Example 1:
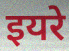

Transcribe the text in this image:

इयरे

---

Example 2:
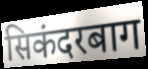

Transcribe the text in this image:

सिकंदरबाग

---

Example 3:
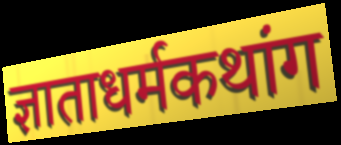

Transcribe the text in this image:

ज्ञाताधर्मकथांग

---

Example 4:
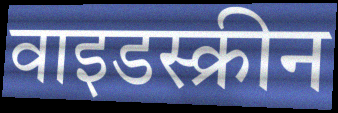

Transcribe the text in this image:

वाइडस्क्रीन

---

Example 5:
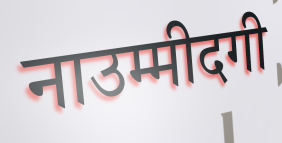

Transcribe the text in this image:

नाउम्मीदगी